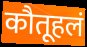
कौतूहलं